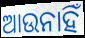
ଆଉନାହିଁ